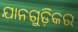
ଯାନଗୁଡ଼ିକର